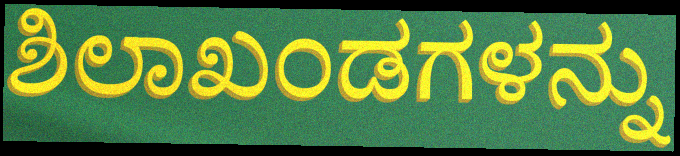
ಶಿಲಾಖಂಡಗಳನ್ನು